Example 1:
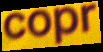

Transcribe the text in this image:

copr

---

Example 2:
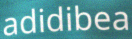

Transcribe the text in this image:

adidibea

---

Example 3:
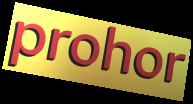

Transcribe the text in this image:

prohor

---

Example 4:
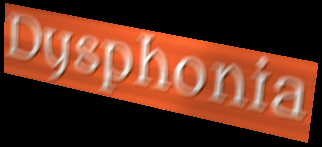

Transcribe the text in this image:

Dysphonia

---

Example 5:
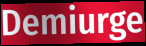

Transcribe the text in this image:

Demiurge